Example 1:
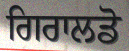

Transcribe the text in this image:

ਗਿਰਾਲਡੋ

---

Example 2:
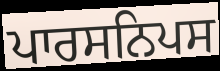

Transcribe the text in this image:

ਪਾਰਸਨਿਪਸ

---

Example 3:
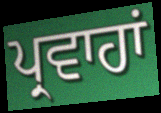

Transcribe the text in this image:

ਪ੍ਰਵਾਹਾਂ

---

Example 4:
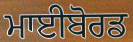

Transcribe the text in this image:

ਮਾਈਬੋਰਡ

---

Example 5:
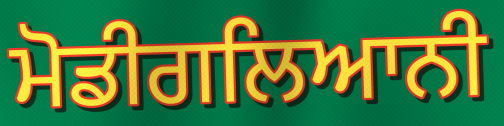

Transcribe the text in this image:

ਮੋਡੀਗਲਿਆਨੀ